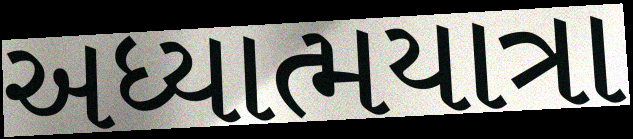
અધ્યાત્મયાત્રા